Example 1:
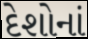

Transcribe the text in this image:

દેશોનાં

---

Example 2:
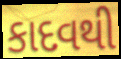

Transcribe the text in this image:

કાદવથી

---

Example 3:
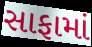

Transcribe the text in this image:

સાફામાં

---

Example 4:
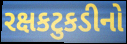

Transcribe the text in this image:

રક્ષકટુકડીનો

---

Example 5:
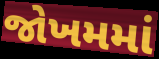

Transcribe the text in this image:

જોખમમાં